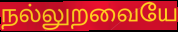
நல்லுறவையே